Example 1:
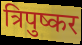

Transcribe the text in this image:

त्रिपुष्कर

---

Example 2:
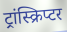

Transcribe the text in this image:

ट्रांस्क्रिप्टर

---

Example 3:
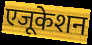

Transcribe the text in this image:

एजूकेशन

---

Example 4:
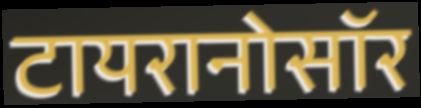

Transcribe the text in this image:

टायरानोसॉर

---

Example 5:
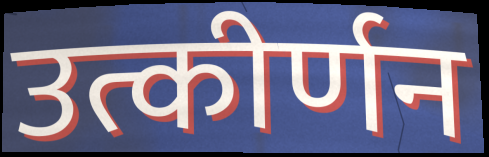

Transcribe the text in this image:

उत्कीर्णन